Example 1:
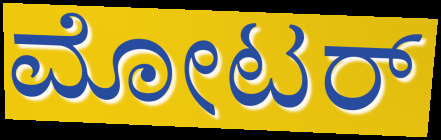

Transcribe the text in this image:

ಮೋಟರ್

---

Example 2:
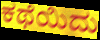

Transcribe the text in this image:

ಕಥೆಯಿದು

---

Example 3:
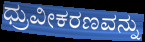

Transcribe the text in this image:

ಧ್ರುವೀಕರಣವನ್ನು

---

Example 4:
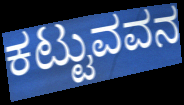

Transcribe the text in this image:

ಕಟ್ಟುವವನ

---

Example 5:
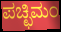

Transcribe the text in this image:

ಪಚ್ಛಿಮಂ